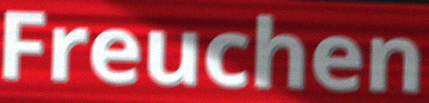
Freuchen